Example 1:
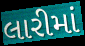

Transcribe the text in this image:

લારીમાં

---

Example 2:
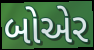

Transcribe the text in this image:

બોએર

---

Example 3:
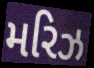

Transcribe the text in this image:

મરિઝ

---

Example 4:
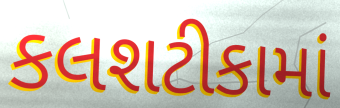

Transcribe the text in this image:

કલશટીકામાં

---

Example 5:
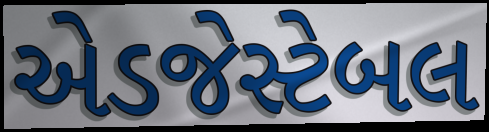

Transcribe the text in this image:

એડજેસ્ટેબલ